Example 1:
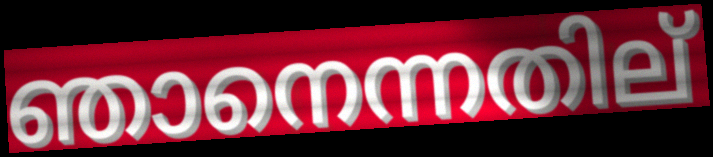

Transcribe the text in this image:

ഞാനെന്നതില്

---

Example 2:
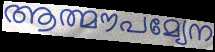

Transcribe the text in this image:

ആത്മൗപമ്യേന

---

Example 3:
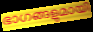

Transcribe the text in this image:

ഭാഗങ്ങളുമായി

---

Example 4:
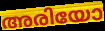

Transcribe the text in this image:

അരിയോ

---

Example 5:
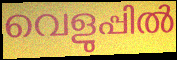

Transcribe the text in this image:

വെളുപ്പിൽ